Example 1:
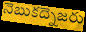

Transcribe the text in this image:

నెబుకద్నెజరు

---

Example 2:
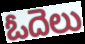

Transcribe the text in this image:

ఓదెలు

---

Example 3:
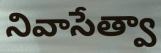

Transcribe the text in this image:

నివాసేత్వా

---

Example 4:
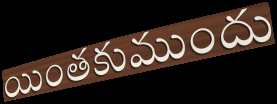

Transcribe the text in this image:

యింతకుముందు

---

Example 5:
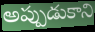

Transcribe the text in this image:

అప్పుడుకాని